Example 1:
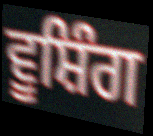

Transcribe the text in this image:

ਵੂਸ਼ਿੰਗ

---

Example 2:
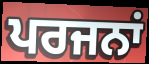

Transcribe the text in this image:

ਪਰਜਨਾਂ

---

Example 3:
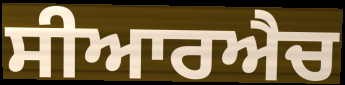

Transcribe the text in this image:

ਸੀਆਰਐਚ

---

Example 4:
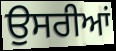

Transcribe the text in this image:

ਉਸਰੀਆਂ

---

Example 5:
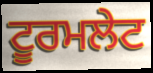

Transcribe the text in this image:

ਟੂਰਮਲੇਟ